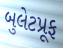
બુલેટપ્રૂફ